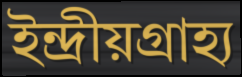
ইন্দ্রীয়গ্রাহ্য